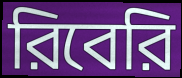
রিবেরি